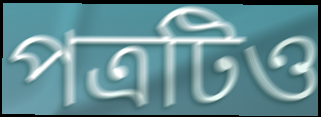
পত্রটিও